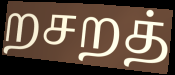
றசறத்